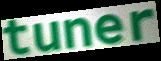
tuner